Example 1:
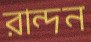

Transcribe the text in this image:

রান্দন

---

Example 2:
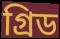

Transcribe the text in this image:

গ্রিড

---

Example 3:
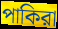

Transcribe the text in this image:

পাকিরা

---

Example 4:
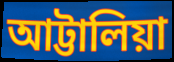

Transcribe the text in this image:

আট্টালিয়া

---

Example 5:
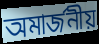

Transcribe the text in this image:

অমার্জনীয়